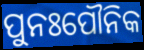
ପୁନଃପୌନିକ